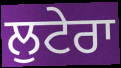
ਲੁਟੇਰਾ